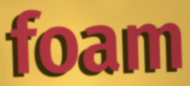
foam